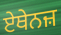
ਏਥੇਨਜ਼